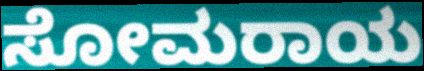
ಸೋಮರಾಯ